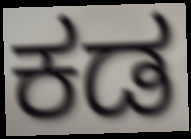
ಕಡ